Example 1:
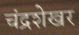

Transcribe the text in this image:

चंद्रशेखर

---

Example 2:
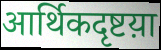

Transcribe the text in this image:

आर्थिकदृष्टय़ा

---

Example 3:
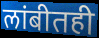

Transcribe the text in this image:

लांबीतही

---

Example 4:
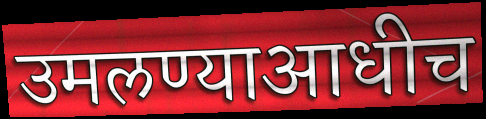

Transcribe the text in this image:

उमलण्याआधीच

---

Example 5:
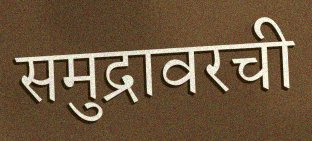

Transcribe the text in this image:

समुद्रावरची